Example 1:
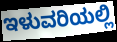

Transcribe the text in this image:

ಇಳುವರಿಯಲ್ಲಿ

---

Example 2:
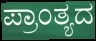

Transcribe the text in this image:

ಪ್ರಾಂತ್ಯದ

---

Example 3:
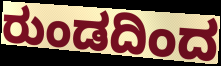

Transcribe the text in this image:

ರುಂಡದಿಂದ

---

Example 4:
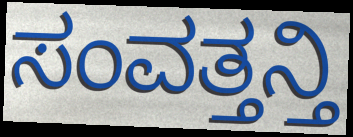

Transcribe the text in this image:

ಸಂವತ್ತನ್ತಿ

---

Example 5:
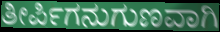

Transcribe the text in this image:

ತೀರ್ಪಿಗನುಗುಣವಾಗಿ